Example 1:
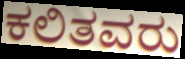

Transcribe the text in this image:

ಕಲಿತವರು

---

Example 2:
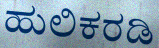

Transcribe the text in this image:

ಹುಲಿಕರಡಿ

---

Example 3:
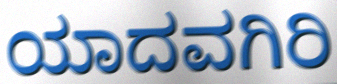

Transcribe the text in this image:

ಯಾದವಗಿರಿ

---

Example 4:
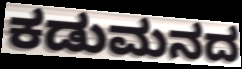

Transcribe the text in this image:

ಕಡುಮನದ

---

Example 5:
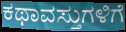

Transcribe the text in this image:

ಕಥಾವಸ್ತುಗಳಿಗೆ